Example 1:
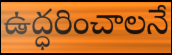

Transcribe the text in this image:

ఉద్ధరించాలనే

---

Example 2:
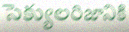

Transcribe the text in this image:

సెక్యులరిజానికి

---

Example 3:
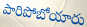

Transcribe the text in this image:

పారిపోబోయారు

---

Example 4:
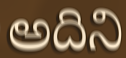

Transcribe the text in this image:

అదిని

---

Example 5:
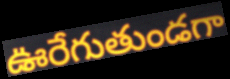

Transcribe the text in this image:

ఊరేగుతుండగా